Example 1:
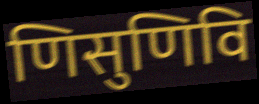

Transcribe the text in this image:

णिसुणिवि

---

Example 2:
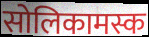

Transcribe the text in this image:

सोलिकामस्क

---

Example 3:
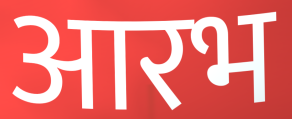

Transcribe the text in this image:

आरभ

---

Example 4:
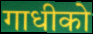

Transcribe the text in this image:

गाधीको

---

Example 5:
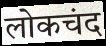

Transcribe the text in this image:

लोकचंद